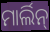
ମାର୍ଲିନ୍